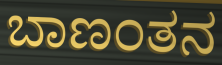
ಬಾಣಂತನ